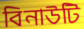
বিনাউটি